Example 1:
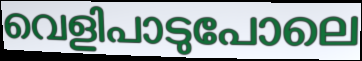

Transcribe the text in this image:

വെളിപാടുപോലെ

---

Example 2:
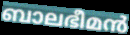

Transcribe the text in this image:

ബാലഭീമൻ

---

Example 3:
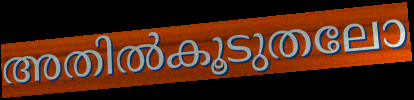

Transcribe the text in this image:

അതിൽകൂടുതലോ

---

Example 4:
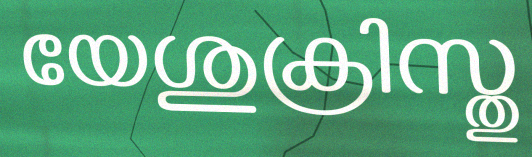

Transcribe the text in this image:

യേശുക്രിസ്തു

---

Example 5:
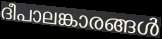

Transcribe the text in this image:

ദീപാലങ്കാരങ്ങൾ